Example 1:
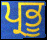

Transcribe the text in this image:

ਪ੍ਰ੍ਰਭੂ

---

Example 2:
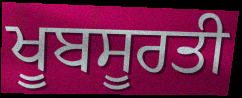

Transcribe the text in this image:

ਖੂਬਸੂਰਤੀ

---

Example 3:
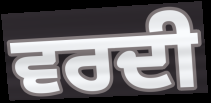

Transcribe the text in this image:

ਵਰਦੀ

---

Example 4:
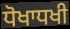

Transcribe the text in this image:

ਧੋਖਾਧਖੀ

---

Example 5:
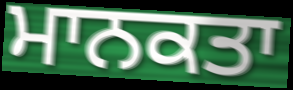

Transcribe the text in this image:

ਮਾਨਕਤਾ